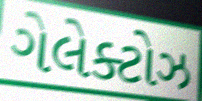
ગેલેક્ટોઝ